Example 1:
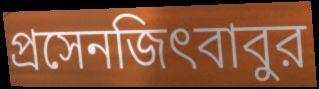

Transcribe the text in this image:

প্রসেনজিৎবাবুর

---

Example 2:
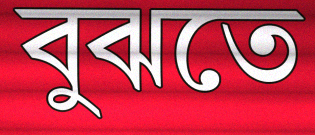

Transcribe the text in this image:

বুঝতে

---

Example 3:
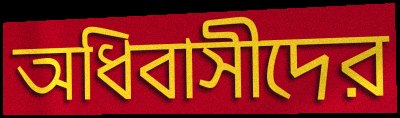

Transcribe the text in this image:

অধিবাসীদের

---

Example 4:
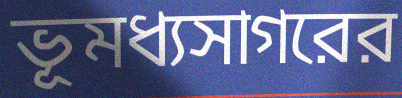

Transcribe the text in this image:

ভূমধ্যসাগরের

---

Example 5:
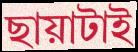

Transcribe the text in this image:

ছায়াটাই